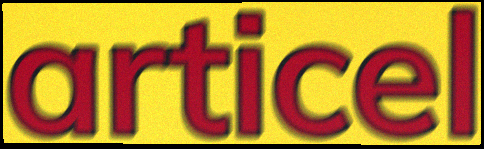
articel